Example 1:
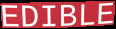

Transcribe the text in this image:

EDIBLE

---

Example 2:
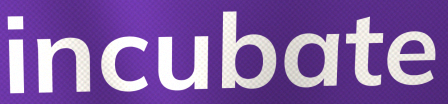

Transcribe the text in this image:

incubate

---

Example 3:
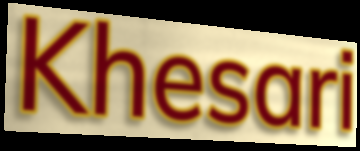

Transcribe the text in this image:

Khesari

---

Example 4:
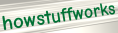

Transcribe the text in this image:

howstuffworks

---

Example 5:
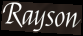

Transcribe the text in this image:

Rayson